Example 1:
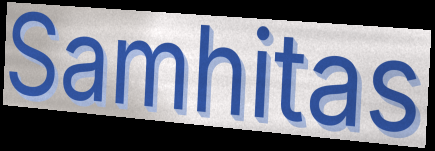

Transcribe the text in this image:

Samhitas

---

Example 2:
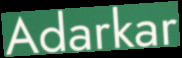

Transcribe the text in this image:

Adarkar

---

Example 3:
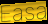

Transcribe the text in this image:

Easa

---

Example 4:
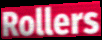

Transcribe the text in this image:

Rollers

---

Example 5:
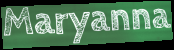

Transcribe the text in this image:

Maryanna